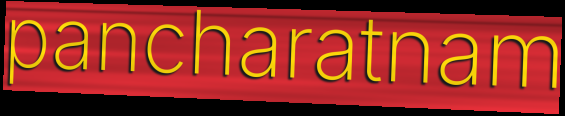
pancharatnam